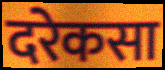
दरेकसा